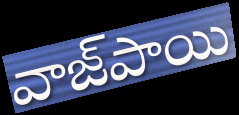
వాజ్‌పాయి